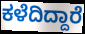
ಕಳೆದಿದ್ದಾರೆ